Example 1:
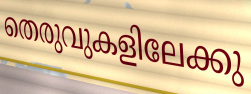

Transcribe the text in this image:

തെരുവുകളിലേക്കു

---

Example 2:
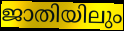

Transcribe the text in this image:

ജാതിയിലും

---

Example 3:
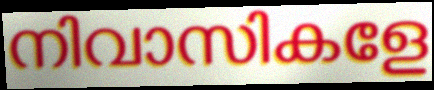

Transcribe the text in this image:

നിവാസികളേ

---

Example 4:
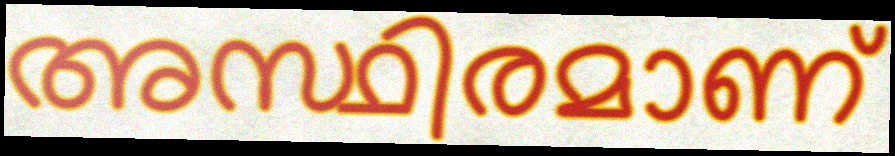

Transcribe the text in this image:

അസ്ഥിരമാണ്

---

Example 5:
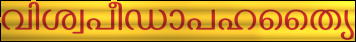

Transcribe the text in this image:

വിശ്വപീഡാപഹത്യൈ